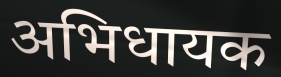
अभिधायक